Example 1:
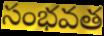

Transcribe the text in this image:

సంభవత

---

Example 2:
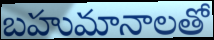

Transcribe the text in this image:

బహుమానాలతో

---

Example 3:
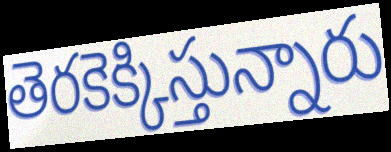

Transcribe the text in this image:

తెరకెక్కిస్తున్నారు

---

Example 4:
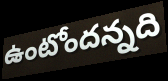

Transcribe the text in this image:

ఉంటోందన్నది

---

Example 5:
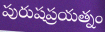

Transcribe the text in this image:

పురుషప్రయత్నం